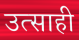
उत्साही